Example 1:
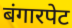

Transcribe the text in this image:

बंगारपेट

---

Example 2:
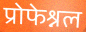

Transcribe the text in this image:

प्रोफेश्नल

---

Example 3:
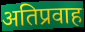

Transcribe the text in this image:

अतिप्रवाह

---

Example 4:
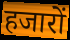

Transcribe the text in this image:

हजारों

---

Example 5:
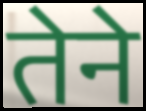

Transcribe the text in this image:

तेने